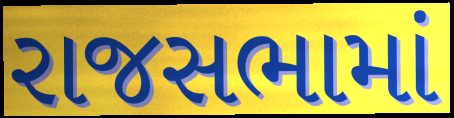
રાજસભામાં